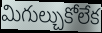
మిగుల్చుకోలేక